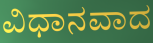
ವಿಧಾನವಾದ